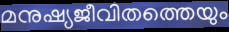
മനുഷ്യജീവിതത്തെയും